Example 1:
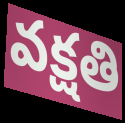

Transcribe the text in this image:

వక్షతి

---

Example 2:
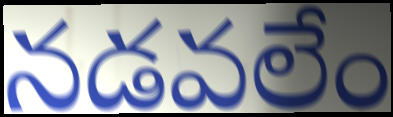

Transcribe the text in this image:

నడవలేం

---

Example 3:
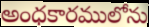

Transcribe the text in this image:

అంధకారములోను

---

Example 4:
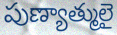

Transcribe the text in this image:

పుణ్యాత్ములై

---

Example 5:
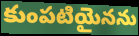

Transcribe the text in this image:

కుంపటియైనను